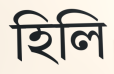
হিলি